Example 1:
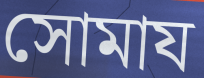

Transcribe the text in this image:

সোমায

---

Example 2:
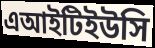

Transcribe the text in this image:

এআইটিইউসি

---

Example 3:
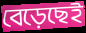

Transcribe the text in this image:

বেড়েছেই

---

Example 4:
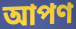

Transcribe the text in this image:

আপণ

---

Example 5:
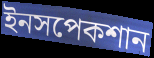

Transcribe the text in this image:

ইনসপেকশান